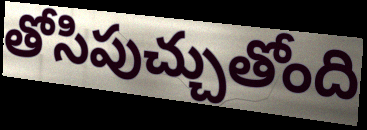
తోసిపుచ్చుతోంది